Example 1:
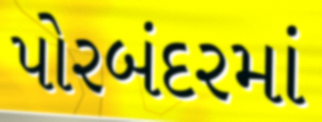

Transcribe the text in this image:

પોરબંદરમાં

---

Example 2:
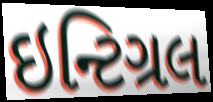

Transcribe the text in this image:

ઇન્ટિગ્રલ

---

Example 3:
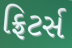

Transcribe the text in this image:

ફ્રિટર્સ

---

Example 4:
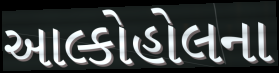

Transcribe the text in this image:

આલ્કોહોલના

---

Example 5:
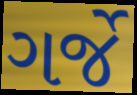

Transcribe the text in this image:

ગર્જે